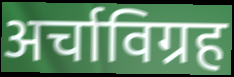
अर्चाविग्रह